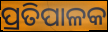
ପ୍ରତିପାଳକ